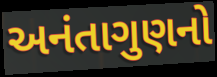
અનંતાગુણનો